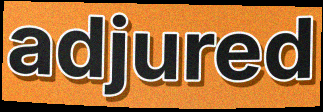
adjured